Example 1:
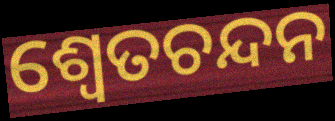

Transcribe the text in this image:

ଶ୍ୱେତଚନ୍ଦନ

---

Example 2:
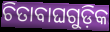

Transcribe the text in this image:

ଚିତାବାଘଗୁଡ଼ିକ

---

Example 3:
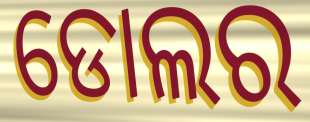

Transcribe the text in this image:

ଡୋଲର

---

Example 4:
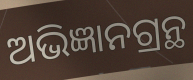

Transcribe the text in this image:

ଅଭିଜ୍ଞାନଗ୍ରନ୍ଥ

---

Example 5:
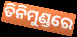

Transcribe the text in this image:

ତିନିମୁଣ୍ଡରେ